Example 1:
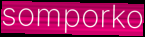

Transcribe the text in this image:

somporko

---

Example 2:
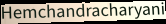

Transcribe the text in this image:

Hemchandracharyani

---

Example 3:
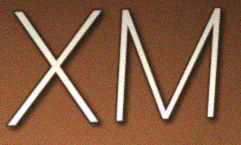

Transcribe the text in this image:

XM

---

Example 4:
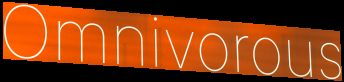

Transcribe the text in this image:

Omnivorous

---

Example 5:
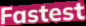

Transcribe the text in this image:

Fastest